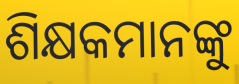
ଶିକ୍ଷକମାନଙ୍କୁ